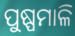
ପୁଷ୍ପମାଳି